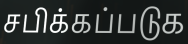
சபிக்கப்படுக